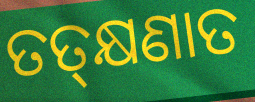
ତତ୍କ୍ଷଣାତ